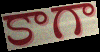
కాగా